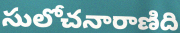
సులోచనారాణిది